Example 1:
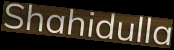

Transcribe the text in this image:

Shahidulla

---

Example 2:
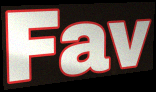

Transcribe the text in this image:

Fav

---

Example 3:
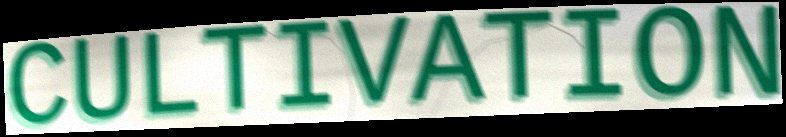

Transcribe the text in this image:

CULTIVATION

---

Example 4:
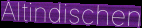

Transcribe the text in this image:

Altindischen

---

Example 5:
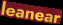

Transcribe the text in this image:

leanear